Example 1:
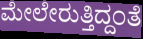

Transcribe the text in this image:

ಮೇಲೇರುತ್ತಿದ್ದಂತೆ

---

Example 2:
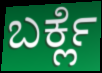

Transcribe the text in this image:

ಬರ್ಕ್ಲೆ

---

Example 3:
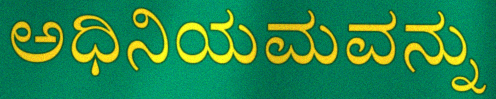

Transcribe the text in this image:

ಅಧಿನಿಯಮವನ್ನು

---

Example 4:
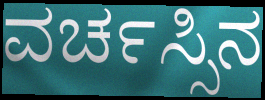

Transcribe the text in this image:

ವರ್ಚಸ್ಸಿನ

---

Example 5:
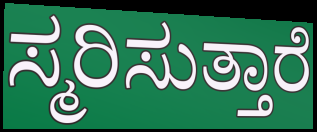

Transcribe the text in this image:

ಸ್ಮರಿಸುತ್ತಾರೆ